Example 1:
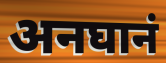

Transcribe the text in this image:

अनघानं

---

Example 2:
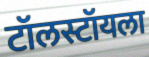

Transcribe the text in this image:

टॉलस्टॉयला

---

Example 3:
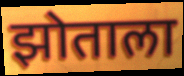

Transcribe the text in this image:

झोताला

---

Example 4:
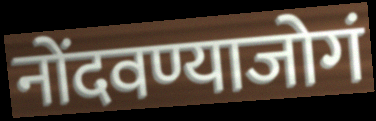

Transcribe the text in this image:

नोंदवण्याजोगं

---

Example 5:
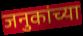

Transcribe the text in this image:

जनुकांच्या